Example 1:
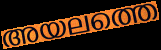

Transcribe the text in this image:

അയലത്തെ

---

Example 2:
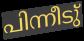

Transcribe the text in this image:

പിന്നീടു്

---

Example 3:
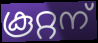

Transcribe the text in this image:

കൂറ്റന്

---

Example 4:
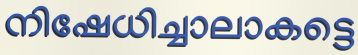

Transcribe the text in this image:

നിഷേധിച്ചാലാകട്ടെ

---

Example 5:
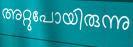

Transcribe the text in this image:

അറ്റുപോയിരുന്നു